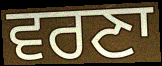
ਵਰਣਾ